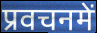
प्रवचनमें